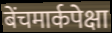
बेंचमार्कपेक्षा